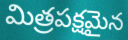
మిత్రపక్షమైన